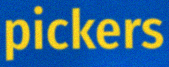
pickers